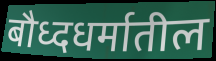
बौध्दधर्मातील